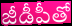
జీడీపీతో